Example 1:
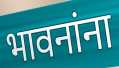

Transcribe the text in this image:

भावनांना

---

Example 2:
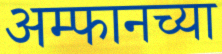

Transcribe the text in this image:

अम्फानच्या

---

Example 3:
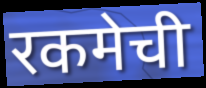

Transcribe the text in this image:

रकमेची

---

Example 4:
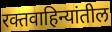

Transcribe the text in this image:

रक्तवाहिन्यांतील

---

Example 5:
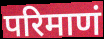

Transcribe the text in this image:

परिमाणं